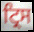
ਟ੍ਰਿਸ